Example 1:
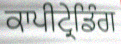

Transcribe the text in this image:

ਕਾਪੀਟ੍ਰੇਡਿੰਗ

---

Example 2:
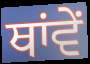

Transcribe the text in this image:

ਥਾਂਵੇਂ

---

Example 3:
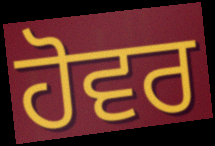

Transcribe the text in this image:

ਹੋਵਰ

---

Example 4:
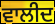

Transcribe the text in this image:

ਵਾਲੀਦ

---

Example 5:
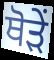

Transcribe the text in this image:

ਥੋੜੇਂ